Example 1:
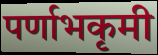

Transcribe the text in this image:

पर्णाभकृमी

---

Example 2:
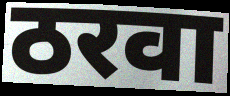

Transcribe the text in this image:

ठरवा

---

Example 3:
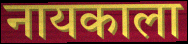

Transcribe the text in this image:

नायकाला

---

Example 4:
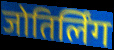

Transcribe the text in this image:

जोतिर्लिंग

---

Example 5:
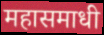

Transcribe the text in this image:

महासमाधी